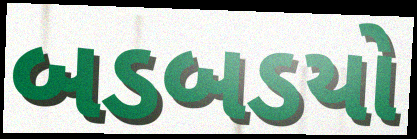
બડબડયો